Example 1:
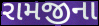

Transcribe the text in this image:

રામજીના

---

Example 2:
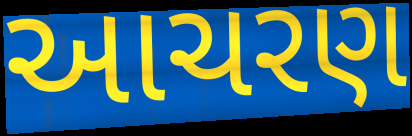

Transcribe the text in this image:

આચરણ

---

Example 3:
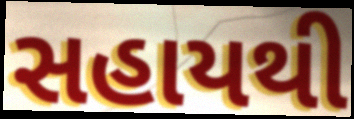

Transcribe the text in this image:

સહાયથી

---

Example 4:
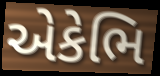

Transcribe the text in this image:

એકેભિ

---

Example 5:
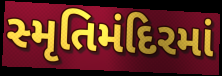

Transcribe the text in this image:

સ્મૃતિમંદિરમાં